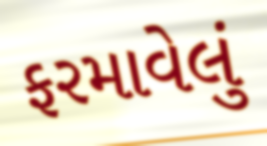
ફરમાવેલું